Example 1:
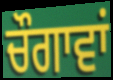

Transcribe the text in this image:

ਚੌਗਾਵਾਂ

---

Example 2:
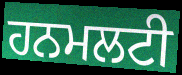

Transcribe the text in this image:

ਹਨਮਲਟੀ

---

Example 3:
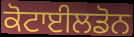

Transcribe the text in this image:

ਕੋਟਾਈਲਡੋਨ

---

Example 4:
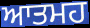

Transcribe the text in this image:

ਆਤਮਹ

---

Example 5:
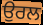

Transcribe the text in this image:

ਉਰਲ